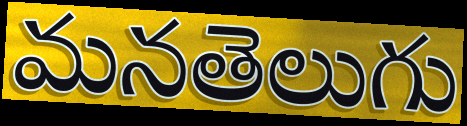
మనతెలుగు